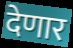
देणार